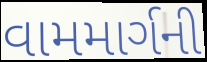
વામમાર્ગની